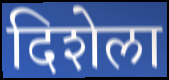
दिशेला